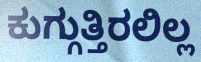
ಕುಗ್ಗುತ್ತಿರಲಿಲ್ಲ